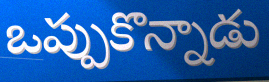
ఒప్పుకొన్నాడు